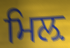
ਮਿਲ਼